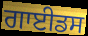
ਗਾਈਡਸ